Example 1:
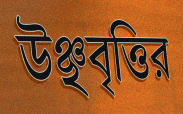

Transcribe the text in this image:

উঞ্ছবৃত্তির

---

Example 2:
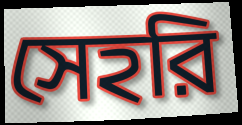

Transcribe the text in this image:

সেহরি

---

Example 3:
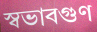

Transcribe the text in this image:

স্বভাবগুণ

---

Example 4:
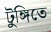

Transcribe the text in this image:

টুঙ্গিতে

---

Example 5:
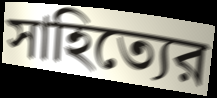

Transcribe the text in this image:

সাহিত্যের